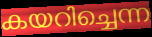
കയറിച്ചെന്ന